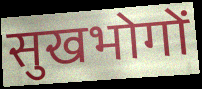
सुखभोगों